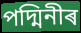
পদ্মিনীৰ